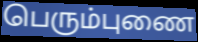
பெரும்புணை